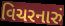
વિચરનારું